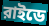
রাইডে